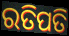
ରତିପତି